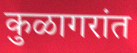
कुळागरांत